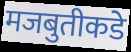
मजबुतीकडे